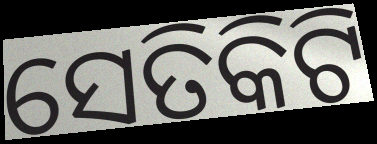
ସେତିକିଟି